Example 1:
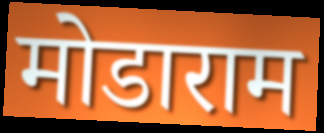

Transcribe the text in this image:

मोडाराम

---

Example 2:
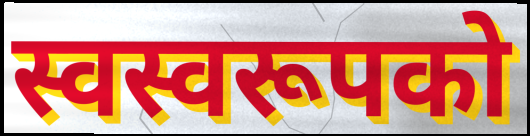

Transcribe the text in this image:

स्वस्वरूपको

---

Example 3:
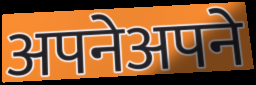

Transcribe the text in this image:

अपनेअपने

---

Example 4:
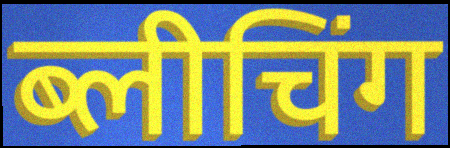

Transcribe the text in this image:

ब्लीचिंग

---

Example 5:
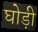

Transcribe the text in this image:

घोड़ी